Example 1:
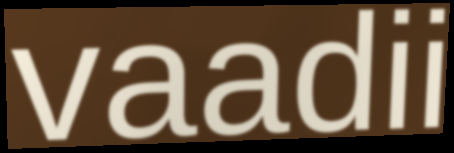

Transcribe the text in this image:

vaadii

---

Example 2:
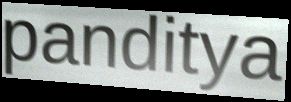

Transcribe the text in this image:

panditya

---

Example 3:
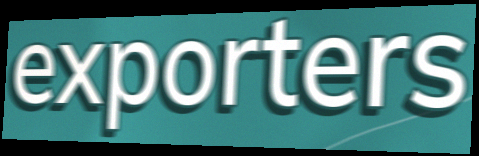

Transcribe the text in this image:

exporters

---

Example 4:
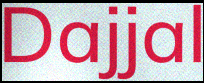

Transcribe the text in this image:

Dajjal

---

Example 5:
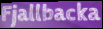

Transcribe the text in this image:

Fjallbacka